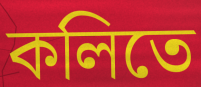
কলিতে